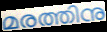
മരത്തിനു